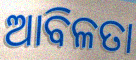
ଆବିଳତା